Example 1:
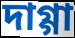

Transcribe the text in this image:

দাগ্গা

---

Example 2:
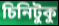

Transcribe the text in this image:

চিনিটুকু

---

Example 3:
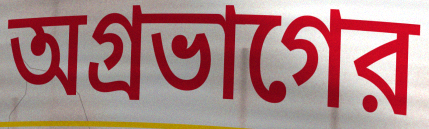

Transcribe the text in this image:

অগ্রভাগের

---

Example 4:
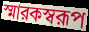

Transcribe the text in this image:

স্মারকস্বরূপ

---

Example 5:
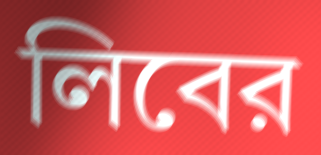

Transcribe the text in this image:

লিবের